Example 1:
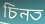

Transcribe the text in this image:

চিনত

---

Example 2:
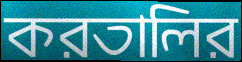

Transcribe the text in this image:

করতালির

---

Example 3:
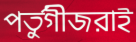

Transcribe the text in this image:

পর্তুগীজরাই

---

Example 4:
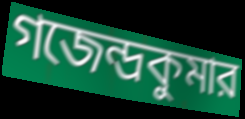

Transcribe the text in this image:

গজেন্দ্রকুমার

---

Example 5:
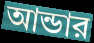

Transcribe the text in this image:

আন্ডার